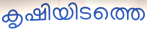
കൃഷിയിടത്തെ